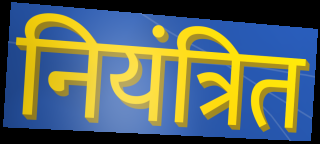
नियंत्रित